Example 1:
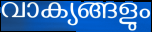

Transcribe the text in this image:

വാക്യങ്ങളും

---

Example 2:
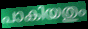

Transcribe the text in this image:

പാകിയതും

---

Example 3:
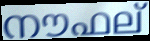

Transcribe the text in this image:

നൗഫല്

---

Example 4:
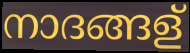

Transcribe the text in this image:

നാദങ്ങള്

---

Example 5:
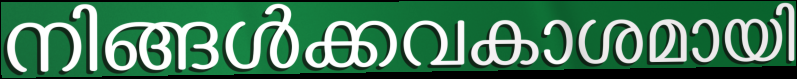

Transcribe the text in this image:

നിങ്ങൾക്കവകാശമായി